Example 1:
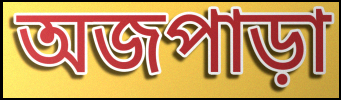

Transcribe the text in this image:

অজপাড়া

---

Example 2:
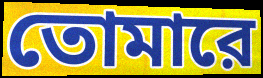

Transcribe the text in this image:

তোমারে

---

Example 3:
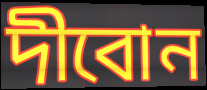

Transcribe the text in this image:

দীবোন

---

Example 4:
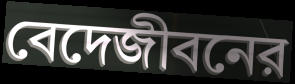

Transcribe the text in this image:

বেদেজীবনের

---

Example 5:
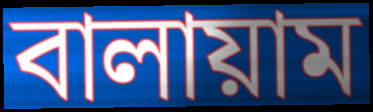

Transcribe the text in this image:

বালায়াম